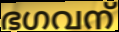
ഭഗവന്